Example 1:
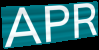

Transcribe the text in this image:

APR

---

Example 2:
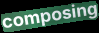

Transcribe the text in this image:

composing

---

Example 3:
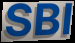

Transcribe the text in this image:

SBI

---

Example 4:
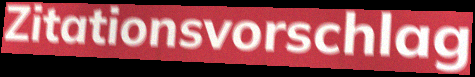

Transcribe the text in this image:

Zitationsvorschlag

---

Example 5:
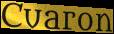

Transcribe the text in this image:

Cuaron